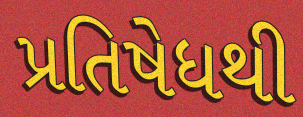
પ્રતિષેધથી